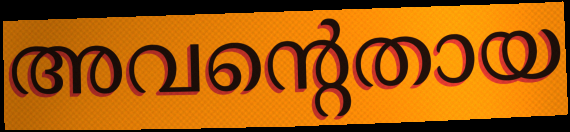
അവന്റെതായ